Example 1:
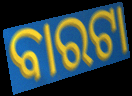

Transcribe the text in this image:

ବାରଟା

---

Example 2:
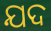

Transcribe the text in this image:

ଯଦ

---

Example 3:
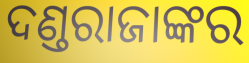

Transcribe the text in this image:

ଦଣ୍ଡରାଜାଙ୍କର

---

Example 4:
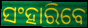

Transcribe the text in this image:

ସଂହାରିବେ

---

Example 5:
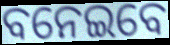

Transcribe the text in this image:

ବନେଇବେ